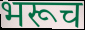
भरूच